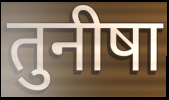
तुनीषा